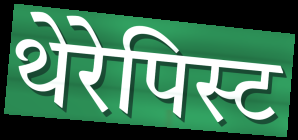
थेरेपिस्‍ट